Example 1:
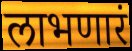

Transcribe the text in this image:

लाभणारं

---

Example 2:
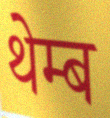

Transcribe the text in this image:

थेम्ब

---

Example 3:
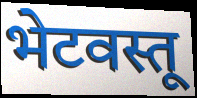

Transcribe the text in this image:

भेटवस्तू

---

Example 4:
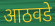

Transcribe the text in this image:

आठवडे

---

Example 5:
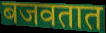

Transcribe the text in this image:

बजवतात